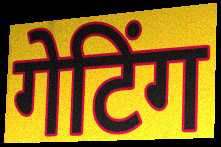
गेटिंग